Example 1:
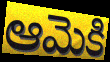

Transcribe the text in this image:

ఆమెకి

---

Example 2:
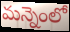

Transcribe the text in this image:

మన్నెంలో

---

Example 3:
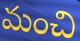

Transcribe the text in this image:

మంచి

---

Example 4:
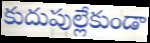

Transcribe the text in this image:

కుదుపుల్లేకుండా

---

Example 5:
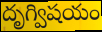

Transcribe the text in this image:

దృగ్విషయం